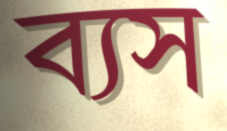
ব্যস